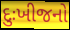
દુઃખીજનો